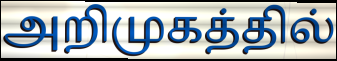
அறிமுகத்தில்